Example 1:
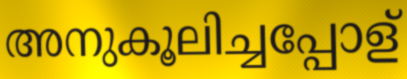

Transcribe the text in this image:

അനുകൂലിച്ചപ്പോള്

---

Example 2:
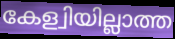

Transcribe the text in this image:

കേള്വിയില്ലാത്ത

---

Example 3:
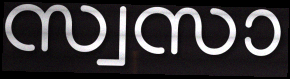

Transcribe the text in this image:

സ്വസാ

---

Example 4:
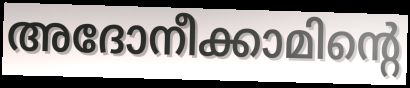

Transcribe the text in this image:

അദോനീക്കാമിന്റെ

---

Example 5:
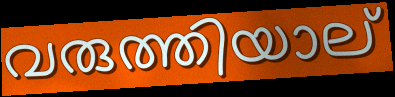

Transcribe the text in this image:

വരുത്തിയാല്